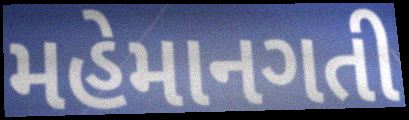
મહેમાનગતી